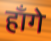
हाँगे